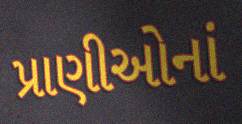
પ્રાણીઓનાં